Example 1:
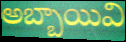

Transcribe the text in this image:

అబ్బాయివి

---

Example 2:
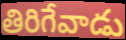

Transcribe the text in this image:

తిరిగేవాడు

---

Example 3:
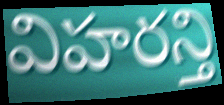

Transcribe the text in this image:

విహరన్తి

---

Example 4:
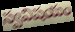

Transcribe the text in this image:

స్వవిషయం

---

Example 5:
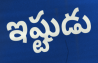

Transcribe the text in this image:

ఇష్టుడు